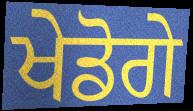
ਖੇਡੋਗੇ